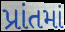
પ્રાંતમાં